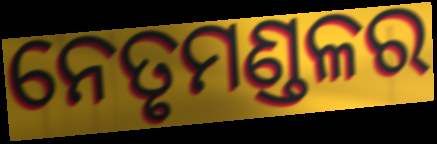
ନେତୃମଣ୍ଡଳର